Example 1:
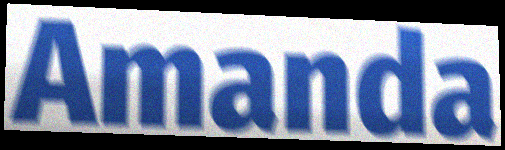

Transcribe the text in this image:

Amanda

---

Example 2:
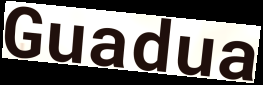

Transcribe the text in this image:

Guadua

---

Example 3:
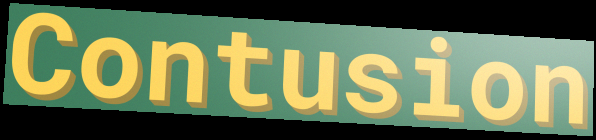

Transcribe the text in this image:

Contusion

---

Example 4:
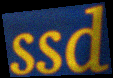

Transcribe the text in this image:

ssd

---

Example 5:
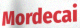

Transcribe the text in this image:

Mordecai